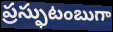
ప్రస్ఫుటంబుగా